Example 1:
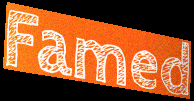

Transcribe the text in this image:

Famed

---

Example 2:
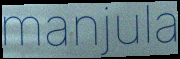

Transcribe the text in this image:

manjula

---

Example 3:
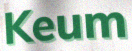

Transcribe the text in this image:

Keum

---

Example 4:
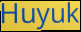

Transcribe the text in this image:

Huyuk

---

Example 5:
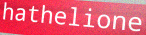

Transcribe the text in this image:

hathelione